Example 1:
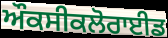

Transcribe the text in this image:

ਔਕਸੀਕਲੋਰਾਈਡ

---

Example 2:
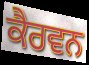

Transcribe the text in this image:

ਕੈਰਵਨ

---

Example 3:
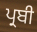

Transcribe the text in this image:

ਪ੍ਰਬੀ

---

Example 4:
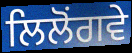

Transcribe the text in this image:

ਲਿਲੋਂਗਵੇ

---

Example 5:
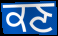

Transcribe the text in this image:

ਕਣ